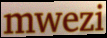
mwezi